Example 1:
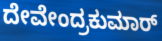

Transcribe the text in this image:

ದೇವೇಂದ್ರಕುಮಾರ್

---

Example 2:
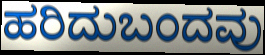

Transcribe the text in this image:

ಹರಿದುಬಂದವು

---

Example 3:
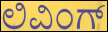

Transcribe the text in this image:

ಲಿವಿಂಗ್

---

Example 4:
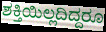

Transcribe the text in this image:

ಶಕ್ತಿಯಿಲ್ಲದಿದ್ದರೂ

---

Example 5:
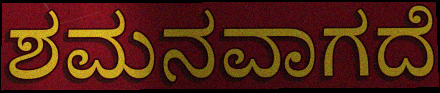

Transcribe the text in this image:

ಶಮನವಾಗದೆ